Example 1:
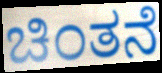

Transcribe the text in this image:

ಚಿಂತನೆ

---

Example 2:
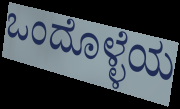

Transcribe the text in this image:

ಒಂದೊಳ್ಳೆಯ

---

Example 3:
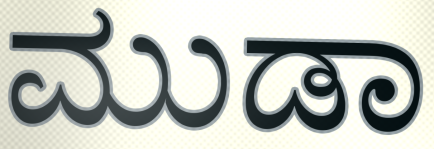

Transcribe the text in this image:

ಮುಡಾ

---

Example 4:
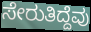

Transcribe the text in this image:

ಸೇರುತಿದ್ದೆವು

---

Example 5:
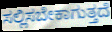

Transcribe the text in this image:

ಸಲ್ಲಿಸಬೇಕಾಗುತ್ತದೆ